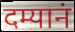
दम्यानं